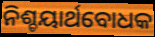
ନିଶ୍ଚୟାର୍ଥବୋଧକ